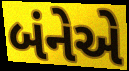
બંનેએ